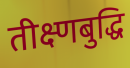
तीक्ष्णबुद्धि